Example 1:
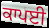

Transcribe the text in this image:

ਕਾਪਈ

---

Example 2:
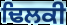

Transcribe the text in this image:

ਢਿਲਕੀ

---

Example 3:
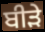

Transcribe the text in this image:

ਬੀੜੇ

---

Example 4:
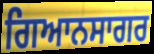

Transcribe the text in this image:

ਗਿਆਨਸਾਗਰ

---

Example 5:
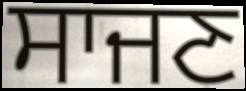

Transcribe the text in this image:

ਸਾਜਣ